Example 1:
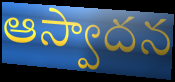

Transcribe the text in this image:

ఆస్వాదన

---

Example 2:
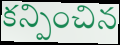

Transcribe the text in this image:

కన్పించిన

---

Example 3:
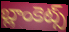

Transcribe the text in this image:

బ్లాంకెట్స్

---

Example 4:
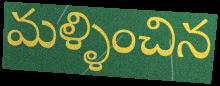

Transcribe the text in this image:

మళ్ళించిన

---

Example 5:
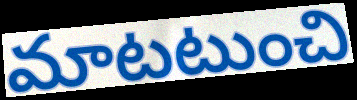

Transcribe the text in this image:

మాటటుంచి